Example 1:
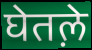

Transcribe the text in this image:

घेतल़े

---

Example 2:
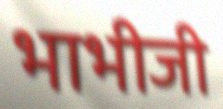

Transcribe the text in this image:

भाभीजी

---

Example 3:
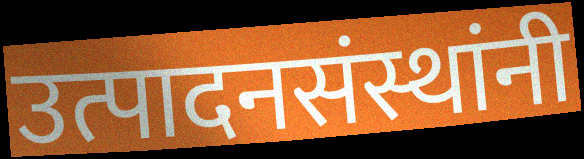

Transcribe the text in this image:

उत्पादनसंस्थांनी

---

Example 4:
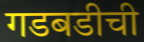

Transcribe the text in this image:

गडबडीची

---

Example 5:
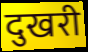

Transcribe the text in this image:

दुखरी